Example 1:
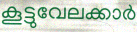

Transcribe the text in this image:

കൂട്ടുവേലക്കാർ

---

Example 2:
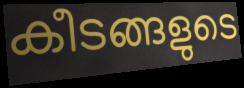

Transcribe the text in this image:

കീടങ്ങളുടെ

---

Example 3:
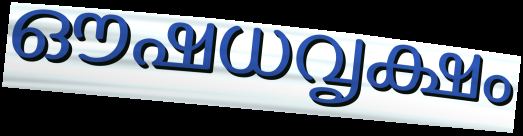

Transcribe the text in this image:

ഔഷധവൃക്ഷം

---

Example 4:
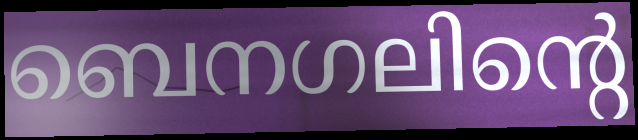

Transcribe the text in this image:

ബെനഗലിന്റെ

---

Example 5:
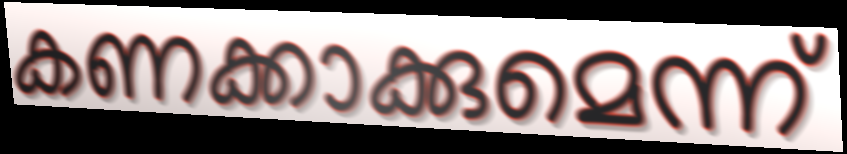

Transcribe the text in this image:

കണക്കാക്കുമെന്ന്